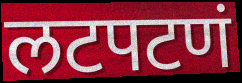
लटपटणं